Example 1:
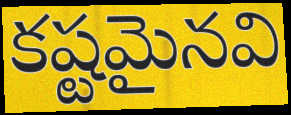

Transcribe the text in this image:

కష్టమైనవి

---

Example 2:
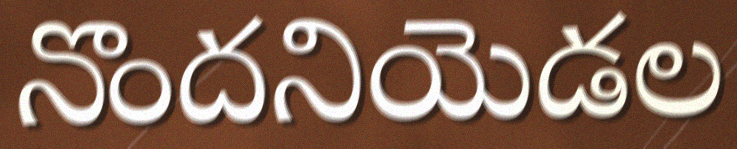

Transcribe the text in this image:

నొందనియెడల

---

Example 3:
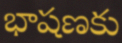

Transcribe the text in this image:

భాషణకు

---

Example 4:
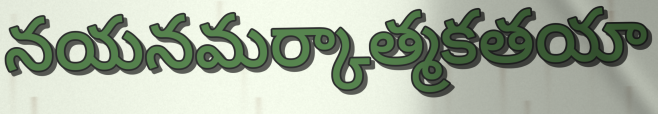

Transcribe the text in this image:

నయనమర్కాత్మకతయా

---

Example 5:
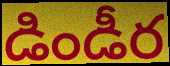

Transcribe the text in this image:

డిండీర